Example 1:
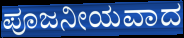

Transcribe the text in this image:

ಪೂಜನೀಯವಾದ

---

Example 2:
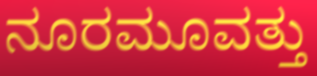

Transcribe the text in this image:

ನೂರಮೂವತ್ತು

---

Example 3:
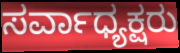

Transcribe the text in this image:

ಸರ್ವಾಧ್ಯಕ್ಷರು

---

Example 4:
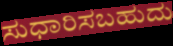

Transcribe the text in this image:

ಸುಧಾರಿಸಬಹುದು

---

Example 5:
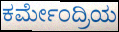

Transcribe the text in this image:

ಕರ್ಮೇಂದ್ರಿಯ